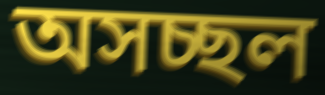
অসচ্ছল